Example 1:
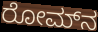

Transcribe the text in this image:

ರೋಮ್‍ನ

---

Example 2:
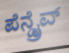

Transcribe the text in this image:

ಪೆನ್ಡ್ರೈವ್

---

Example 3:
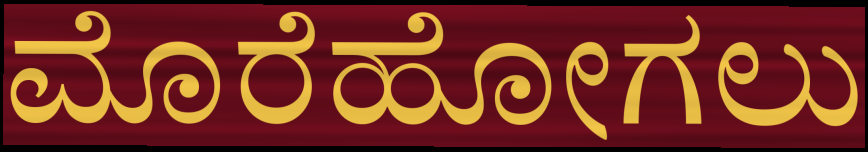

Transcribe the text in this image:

ಮೊರೆಹೋಗಲು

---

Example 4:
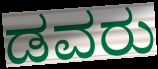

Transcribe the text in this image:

ಡವರು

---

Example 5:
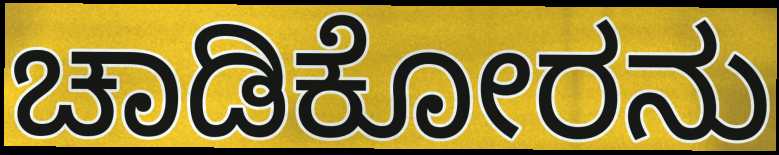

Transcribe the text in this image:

ಚಾಡಿಕೋರನು